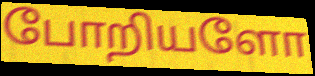
போறியளோ